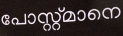
പോസ്റ്റ്മാനെ